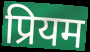
प्रियम